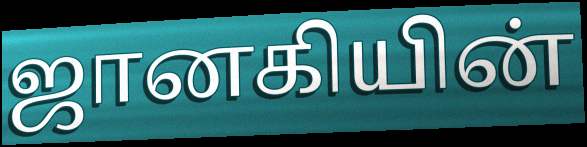
ஜானகியின்